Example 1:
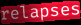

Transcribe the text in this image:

relapses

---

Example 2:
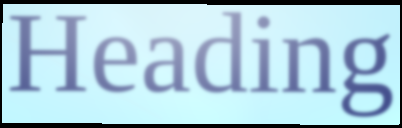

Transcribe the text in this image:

Heading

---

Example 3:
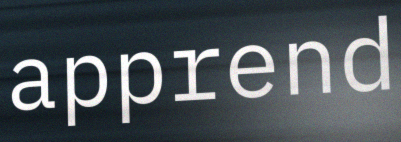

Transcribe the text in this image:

apprend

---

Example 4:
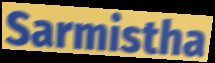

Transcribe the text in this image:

Sarmistha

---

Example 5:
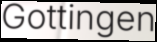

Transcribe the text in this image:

Gottingen